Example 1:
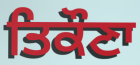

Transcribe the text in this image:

ਤਿਕੌਣਾ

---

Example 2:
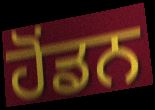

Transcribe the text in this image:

ਹੋਂਡਨ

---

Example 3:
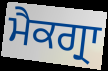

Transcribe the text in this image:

ਮੈਕਗ੍ਰਾ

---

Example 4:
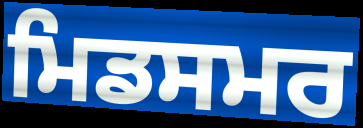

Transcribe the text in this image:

ਮਿਡਸਮਰ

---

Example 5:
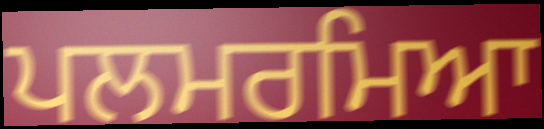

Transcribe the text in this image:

ਪਲਮਰਮਿਆ